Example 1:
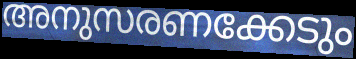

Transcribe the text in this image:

അനുസരണക്കേടും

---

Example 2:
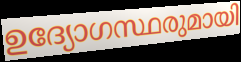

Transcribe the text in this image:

ഉദ്യോഗസ്ഥരുമായി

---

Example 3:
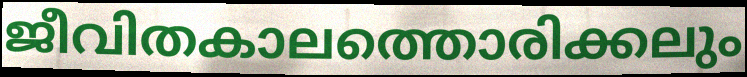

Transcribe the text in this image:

ജീവിതകാലത്തൊരിക്കലും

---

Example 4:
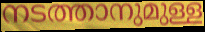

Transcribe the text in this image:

നടത്താനുമുള്ള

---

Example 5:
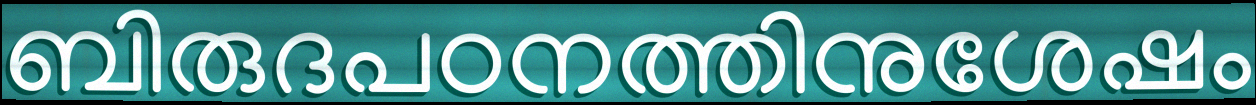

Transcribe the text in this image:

ബിരുദപഠനത്തിനുശേഷം